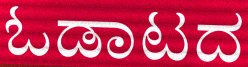
ಓಡಾಟದ